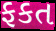
ફકત